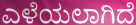
ಎಳೆಯಲಾಗಿದೆ